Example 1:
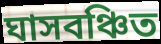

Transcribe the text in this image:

ঘাসবঞ্চিত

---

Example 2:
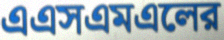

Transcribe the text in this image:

এএসএমএলের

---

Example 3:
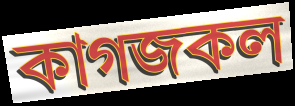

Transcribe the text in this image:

কাগজকল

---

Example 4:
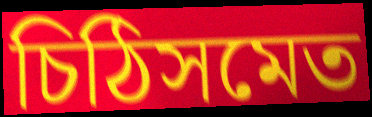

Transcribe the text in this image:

চিঠিসমেত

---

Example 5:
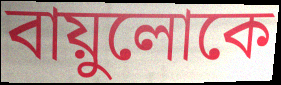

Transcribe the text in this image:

বায়ুলোকে